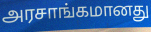
அரசாங்கமானது